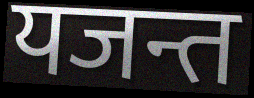
यजन्त